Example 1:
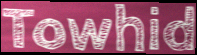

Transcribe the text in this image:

Towhid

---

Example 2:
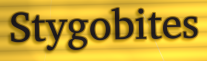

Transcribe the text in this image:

Stygobites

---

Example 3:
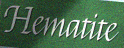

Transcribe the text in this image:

Hematite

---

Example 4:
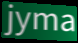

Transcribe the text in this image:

jyma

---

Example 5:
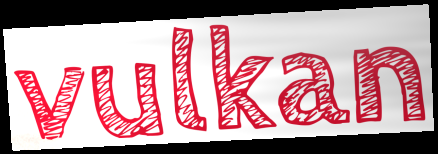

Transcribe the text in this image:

vulkan